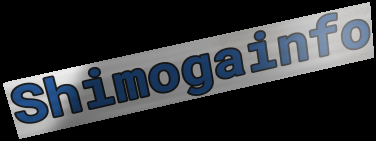
Shimogainfo